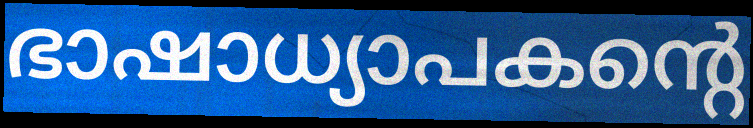
ഭാഷാധ്യാപകന്റെ